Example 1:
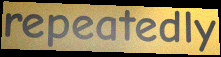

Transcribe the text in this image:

repeatedly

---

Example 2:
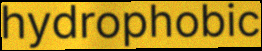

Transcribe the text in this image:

hydrophobic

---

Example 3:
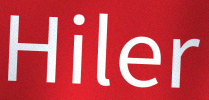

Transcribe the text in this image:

Hiler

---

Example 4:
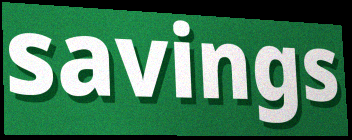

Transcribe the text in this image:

savings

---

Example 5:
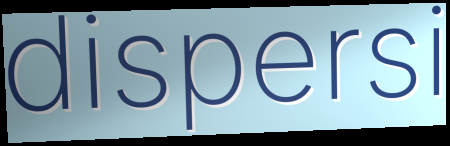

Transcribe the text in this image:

dispersi